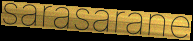
sarasarane